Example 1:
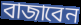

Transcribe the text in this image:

বাজাবেন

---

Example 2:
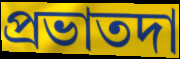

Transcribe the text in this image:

প্রভাতদা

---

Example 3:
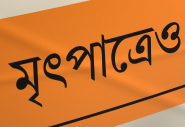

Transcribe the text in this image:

মৃৎপাত্রেও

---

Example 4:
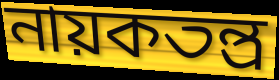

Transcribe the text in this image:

নায়কতন্ত্র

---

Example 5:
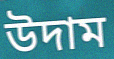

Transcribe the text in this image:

উদাম